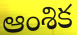
ఆంశిక